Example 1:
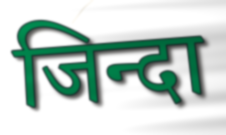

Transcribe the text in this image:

जिन्दा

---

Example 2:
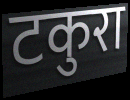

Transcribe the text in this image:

टकुरा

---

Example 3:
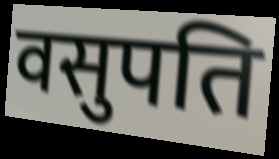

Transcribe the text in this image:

वसुपति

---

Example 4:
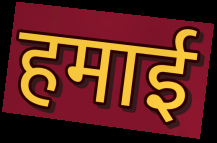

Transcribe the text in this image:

हमाई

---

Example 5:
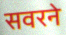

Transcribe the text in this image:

सवरने